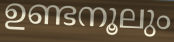
ഉണ്ടനൂലും